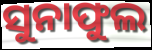
ସୁନାଫୁଲ